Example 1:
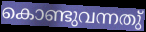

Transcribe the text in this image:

കൊണ്ടുവന്നതു്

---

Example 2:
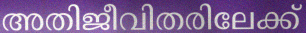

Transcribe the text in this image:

അതിജീവിതരിലേക്ക്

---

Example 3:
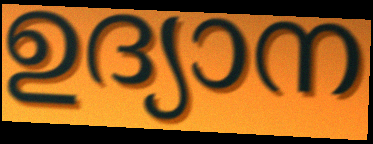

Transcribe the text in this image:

ഉദ്യാന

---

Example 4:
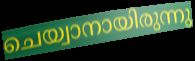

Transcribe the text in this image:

ചെയ്വാനായിരുന്നു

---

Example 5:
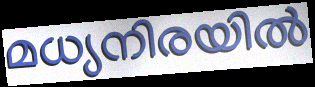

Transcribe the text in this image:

മധ്യനിരയിൽ